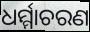
ଧର୍ମ୍ମାଚରଣ